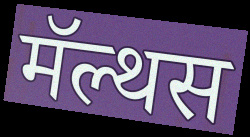
मॅल्थस